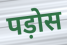
पड़ोस